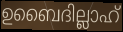
ഉബൈദില്ലാഹ്